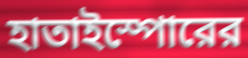
হাতাইস্পোরের